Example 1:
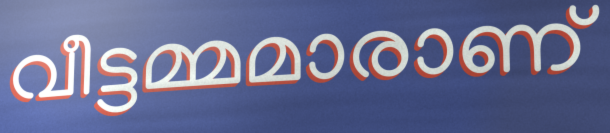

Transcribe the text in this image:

വീട്ടമ്മമാരാണ്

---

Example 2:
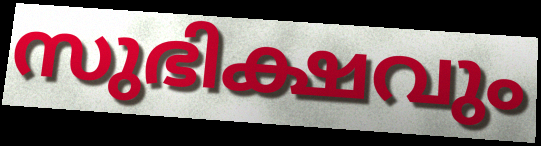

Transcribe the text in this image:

സുഭിക്ഷവും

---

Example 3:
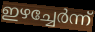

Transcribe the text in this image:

ഇഴച്ചേർന്ന്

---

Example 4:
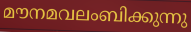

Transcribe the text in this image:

മൗനമവലംബിക്കുന്നു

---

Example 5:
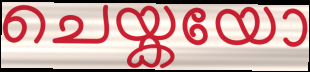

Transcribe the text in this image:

ചെയ്കയോ